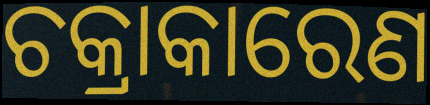
ଚକ୍ରାକାରେଣ